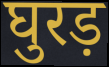
घुरड़